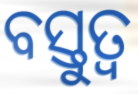
ବସ୍ତୁତ୍ୱ